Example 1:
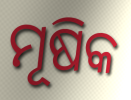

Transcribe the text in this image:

ମୂଷିକ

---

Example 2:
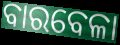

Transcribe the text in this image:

ବାରବେଳା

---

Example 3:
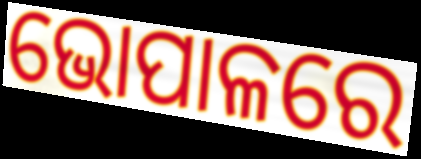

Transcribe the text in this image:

ଭୋପାଳରେ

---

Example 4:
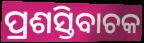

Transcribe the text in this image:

ପ୍ରଶସ୍ତିବାଚକ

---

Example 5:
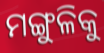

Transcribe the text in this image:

ମଙ୍ଗୁଳିକୁ